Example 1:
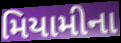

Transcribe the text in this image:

મિયામીના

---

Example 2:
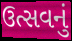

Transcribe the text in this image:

ઉત્સવનું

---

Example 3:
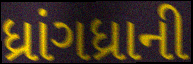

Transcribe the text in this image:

ધ્રાંગધ્રાની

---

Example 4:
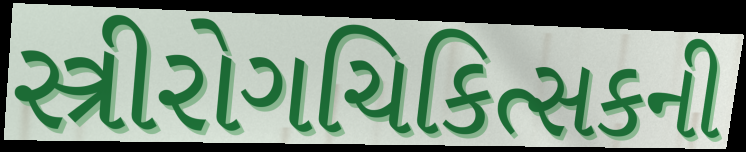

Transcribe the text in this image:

સ્ત્રીરોગચિકિત્સકની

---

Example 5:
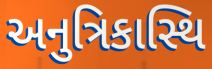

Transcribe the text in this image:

અનુત્રિકાસ્થિ